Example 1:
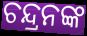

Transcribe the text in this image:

ଚନ୍ଦ୍ରନଙ୍କ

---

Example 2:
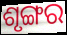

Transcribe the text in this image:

ଶୃଙ୍ଗର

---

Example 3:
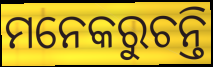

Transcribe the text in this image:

ମନେକରୁଚନ୍ତି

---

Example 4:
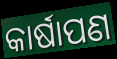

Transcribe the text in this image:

କାର୍ଷାପଣ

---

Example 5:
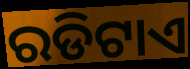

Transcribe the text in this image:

ରଡିଟାଏ